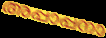
അപ്പാപ്പനാ